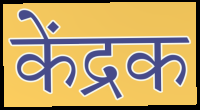
केंद्रक